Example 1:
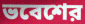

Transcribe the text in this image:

ভবেশের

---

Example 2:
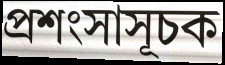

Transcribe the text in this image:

প্রশংসাসূচক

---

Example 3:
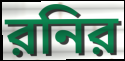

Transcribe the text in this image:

রনির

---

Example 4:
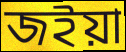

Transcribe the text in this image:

জইয়া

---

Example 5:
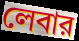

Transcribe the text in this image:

লেবার